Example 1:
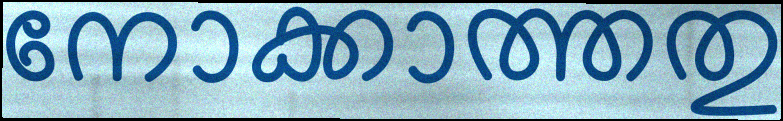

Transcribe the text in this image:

നോക്കാത്തതു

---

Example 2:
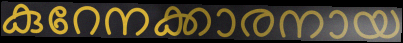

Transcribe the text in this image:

കുറേനക്കാരനായ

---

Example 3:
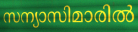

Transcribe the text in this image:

സന്യാസിമാരിൽ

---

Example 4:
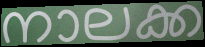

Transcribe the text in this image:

നാലക്ക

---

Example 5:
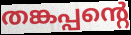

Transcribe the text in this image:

തങ്കപ്പന്റെ